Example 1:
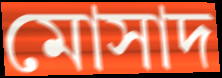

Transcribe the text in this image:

মোসাদ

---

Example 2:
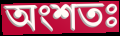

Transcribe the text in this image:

অংশতঃ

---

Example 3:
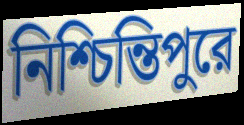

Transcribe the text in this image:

নিশ্চিন্তিপুরে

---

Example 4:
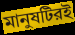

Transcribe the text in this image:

মানুষটিরই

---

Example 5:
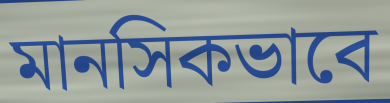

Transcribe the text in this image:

মানসিকভাবে